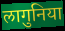
लागुनिया